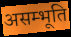
असम्भूति